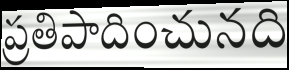
ప్రతిపాదించునది